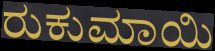
ರುಕುಮಾಯಿ